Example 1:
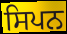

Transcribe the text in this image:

ਸਿਪਨ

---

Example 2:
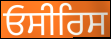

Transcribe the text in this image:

ਓਸੀਰਿਸ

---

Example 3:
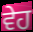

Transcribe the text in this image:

ਵੇਹ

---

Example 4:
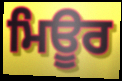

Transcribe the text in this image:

ਮਿਊਰ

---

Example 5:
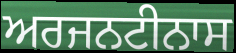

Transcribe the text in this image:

ਅਰਜਨਟੀਨਾਸ